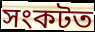
সংকটত